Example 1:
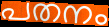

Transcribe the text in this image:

പതനം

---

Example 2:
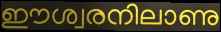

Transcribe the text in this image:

ഈശ്വരനിലാണു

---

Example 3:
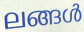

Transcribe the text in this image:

ലങ്ങൾ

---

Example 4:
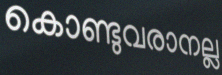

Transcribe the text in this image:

കൊണ്ടുവരാനല്ല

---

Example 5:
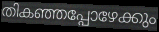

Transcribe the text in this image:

തികഞ്ഞപ്പോഴേക്കും